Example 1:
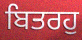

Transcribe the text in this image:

ਬਿਤਰਹੁ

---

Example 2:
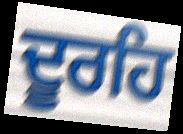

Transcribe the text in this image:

ਦੂਰਹਿ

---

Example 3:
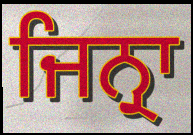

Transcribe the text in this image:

ਜਿਨ੍ਰਾ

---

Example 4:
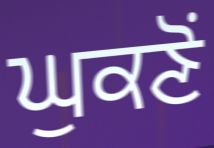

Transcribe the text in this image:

ਘੁਕਣੋਂ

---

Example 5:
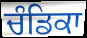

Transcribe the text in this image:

ਚੰਡਿਕਾ